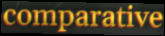
comparative